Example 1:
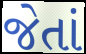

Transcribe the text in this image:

જેતાં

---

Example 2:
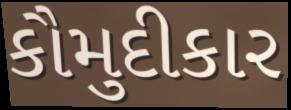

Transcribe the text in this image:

કૌમુદીકાર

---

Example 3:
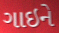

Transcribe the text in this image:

ગાઇને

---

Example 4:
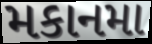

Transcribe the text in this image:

મકાનમા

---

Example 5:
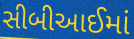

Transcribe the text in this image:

સીબીઆઈમાં